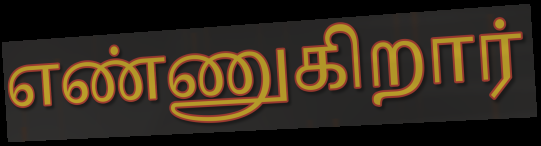
எண்ணுகிறார்